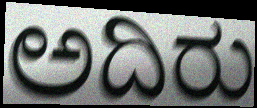
ಅದಿರು